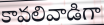
కావలివాడిగా